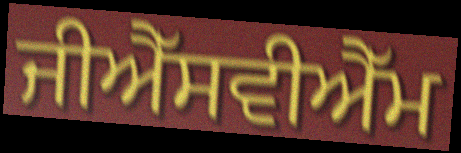
ਜੀਐੱਸਵੀਐੱਮ